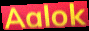
Aalok